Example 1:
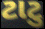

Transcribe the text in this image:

ટાટુ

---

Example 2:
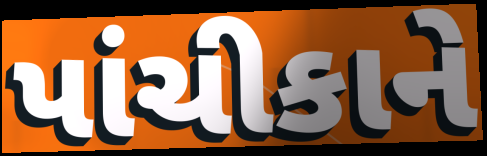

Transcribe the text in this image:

પાંચીકાને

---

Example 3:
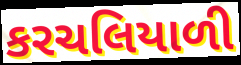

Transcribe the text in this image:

કરચલિયાળી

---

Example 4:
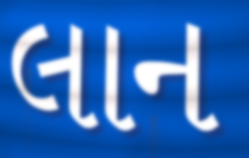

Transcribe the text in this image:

લાન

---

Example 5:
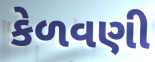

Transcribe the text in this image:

કેળવણી